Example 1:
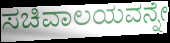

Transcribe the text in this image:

ಸಚಿವಾಲಯವನ್ನೇ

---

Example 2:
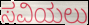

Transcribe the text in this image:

ಸವಿಯಲು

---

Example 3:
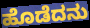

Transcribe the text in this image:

ಹೊಡೆದನು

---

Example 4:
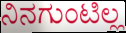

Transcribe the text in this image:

ನಿನಗುಂಟಿಲ್ಲ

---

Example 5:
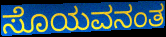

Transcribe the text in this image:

ಸೊಯವನಂತ